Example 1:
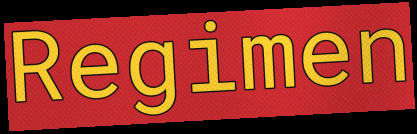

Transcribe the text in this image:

Regimen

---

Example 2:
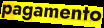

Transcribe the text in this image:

pagamento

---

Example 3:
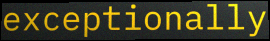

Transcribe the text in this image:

exceptionally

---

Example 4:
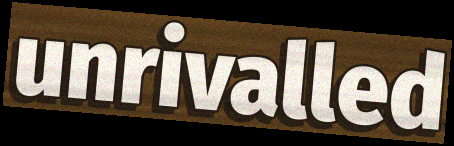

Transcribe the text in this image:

unrivalled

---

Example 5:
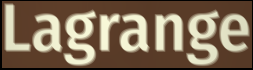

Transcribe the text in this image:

Lagrange